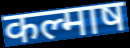
कल्माष